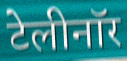
टेलीनॉर